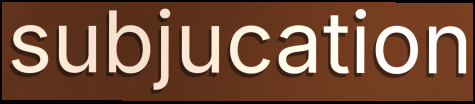
subjucation